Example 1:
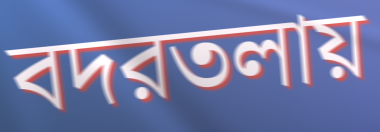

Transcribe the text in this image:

বদরতলায়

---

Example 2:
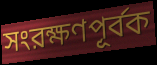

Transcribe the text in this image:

সংরক্ষণপূর্বক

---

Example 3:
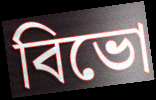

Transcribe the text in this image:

বিভো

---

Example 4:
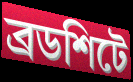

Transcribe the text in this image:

ব্রডশিটে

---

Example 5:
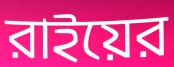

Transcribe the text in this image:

রাইয়ের